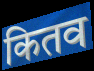
कितव